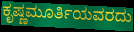
ಕೃಷ್ಣಮೂರ್ತಿಯವರದು